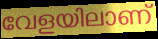
വേളയിലാണ്